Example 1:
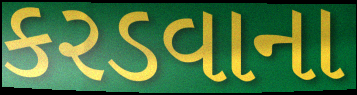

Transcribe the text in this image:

કરડવાના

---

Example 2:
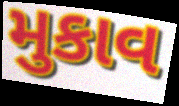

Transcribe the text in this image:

મુકાવ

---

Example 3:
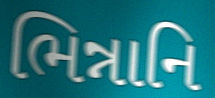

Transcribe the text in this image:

ભિન્નાનિ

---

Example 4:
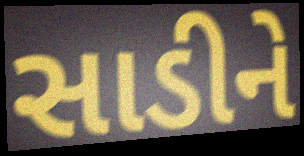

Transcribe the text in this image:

સાડીને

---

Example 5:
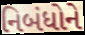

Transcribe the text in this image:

નિબંધોને